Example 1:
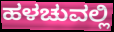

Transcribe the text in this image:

ಹಳಚುವಲ್ಲಿ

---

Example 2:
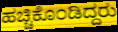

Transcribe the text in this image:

ಹಚ್ಚಿಕೊಂಡಿದ್ದರು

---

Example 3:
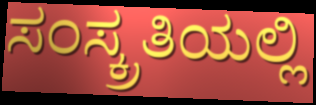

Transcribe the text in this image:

ಸಂಸ್ಕ್ರತಿಯಲ್ಲಿ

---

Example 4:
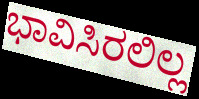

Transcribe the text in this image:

ಭಾವಿಸಿರಲಿಲ್ಲ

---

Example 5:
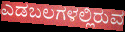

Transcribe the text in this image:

ಎಡಬಲಗಳಲ್ಲಿರುವ